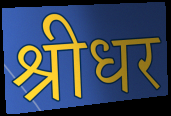
श्रीधर